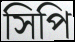
সিপি